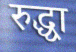
रुद्ध्वा